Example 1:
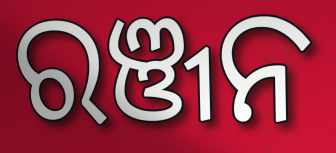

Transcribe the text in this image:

ରଞ୍ଜନ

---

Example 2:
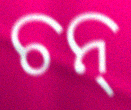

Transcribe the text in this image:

ଚନ୍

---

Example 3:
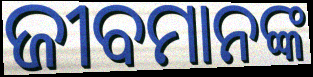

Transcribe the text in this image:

ଜୀବମାନଙ୍କ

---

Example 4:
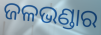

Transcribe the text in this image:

ଜଳଭଣ୍ଡାର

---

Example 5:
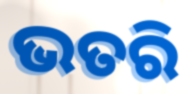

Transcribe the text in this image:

ଭତରି